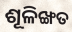
ଶୂଳିଙ୍ଖତ